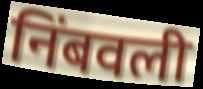
निंबवली